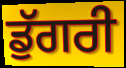
ਡੁੱਗਰੀ